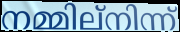
നമ്മില്നിന്ന്